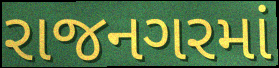
રાજનગરમાં